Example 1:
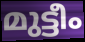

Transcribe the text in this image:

മുട്ടീം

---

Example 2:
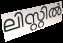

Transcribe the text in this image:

ലിസ്റ്റിൽ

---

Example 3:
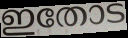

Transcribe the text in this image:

ഇതോട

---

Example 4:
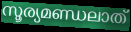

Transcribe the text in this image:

സൂര്യമണ്ഡലാത്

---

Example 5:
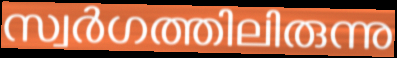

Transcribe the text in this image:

സ്വർഗത്തിലിരുന്നു